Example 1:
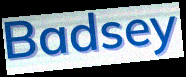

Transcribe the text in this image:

Badsey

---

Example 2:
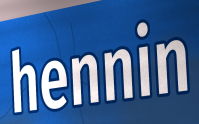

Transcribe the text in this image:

hennin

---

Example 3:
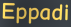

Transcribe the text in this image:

Eppadi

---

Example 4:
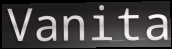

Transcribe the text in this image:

Vanita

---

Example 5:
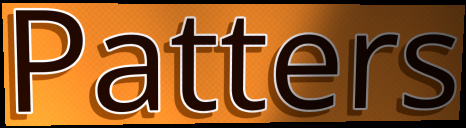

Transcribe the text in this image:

Patters